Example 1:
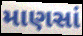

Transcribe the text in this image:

માણસાં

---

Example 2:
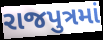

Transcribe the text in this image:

રાજપુત્રમાં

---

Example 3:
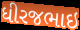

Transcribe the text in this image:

ધીરજભાઇ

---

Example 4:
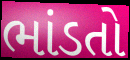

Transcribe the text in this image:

ભાંડતો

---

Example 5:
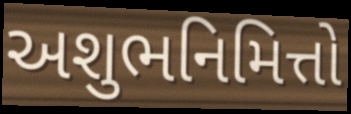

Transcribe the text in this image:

અશુભનિમિત્તો